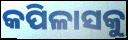
କପିଳାସକୁ